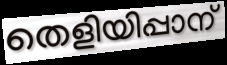
തെളിയിപ്പാന്